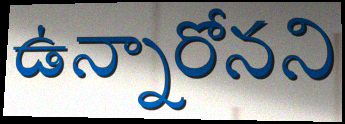
ఉన్నారోనని